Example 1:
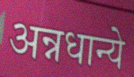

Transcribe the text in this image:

अन्नधान्ये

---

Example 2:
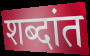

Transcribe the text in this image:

शब्दांत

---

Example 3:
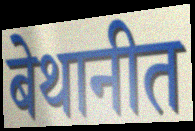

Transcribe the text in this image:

बेथानीत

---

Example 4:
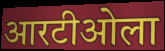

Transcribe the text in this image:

आरटीओला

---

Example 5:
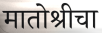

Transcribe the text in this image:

मातोश्रीचा